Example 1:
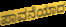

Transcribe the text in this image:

ಪಾವನೆಯಾದ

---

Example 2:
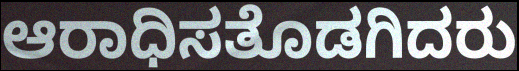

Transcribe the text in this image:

ಆರಾಧಿಸತೊಡಗಿದರು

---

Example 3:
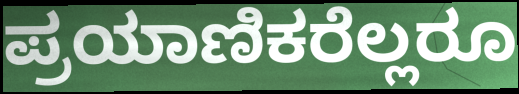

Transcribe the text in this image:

ಪ್ರಯಾಣಿಕರೆಲ್ಲರೂ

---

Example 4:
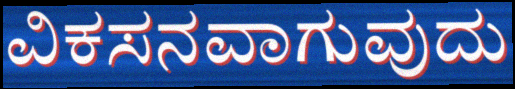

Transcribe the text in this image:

ವಿಕಸನವಾಗುವುದು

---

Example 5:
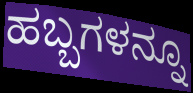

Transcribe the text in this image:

ಹಬ್ಬಗಳನ್ನೂ